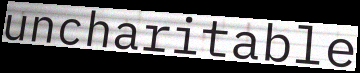
uncharitable